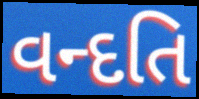
વન્દતિ